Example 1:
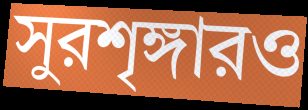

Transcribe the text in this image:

সুরশৃঙ্গারও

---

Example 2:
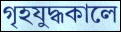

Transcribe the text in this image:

গৃহযুদ্ধকালে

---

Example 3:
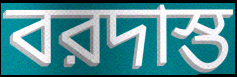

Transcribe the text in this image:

বরদাস্ত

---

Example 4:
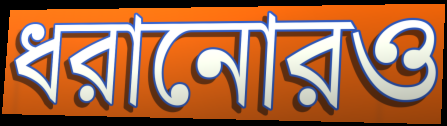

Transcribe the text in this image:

ধরানোরও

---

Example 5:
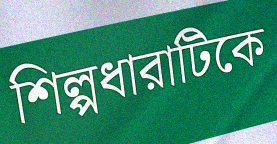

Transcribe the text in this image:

শিল্পধারাটিকে